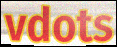
vdots